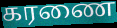
கரணை